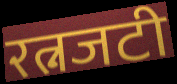
रत्नजटी